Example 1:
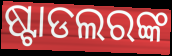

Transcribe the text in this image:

ଷ୍ଟାଡଲରଙ୍କ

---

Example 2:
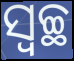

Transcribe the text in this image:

ସ୍ଵଚ୍ଛ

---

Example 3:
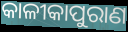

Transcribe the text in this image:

କାଳୀକାପୁରାଣ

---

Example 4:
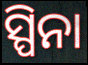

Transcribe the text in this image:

ସ୍ପିନା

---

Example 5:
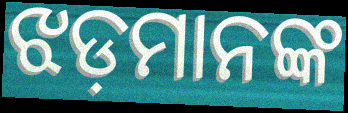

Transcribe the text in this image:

ଝଡ଼ମାନଙ୍କ